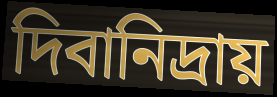
দিবানিদ্রায়